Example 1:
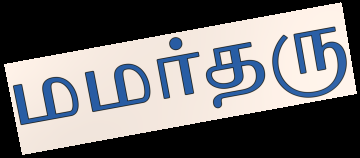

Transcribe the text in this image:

மமர்தரு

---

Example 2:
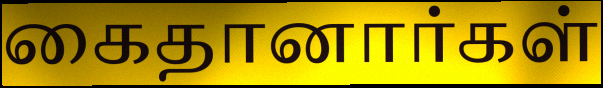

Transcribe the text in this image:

கைதானார்கள்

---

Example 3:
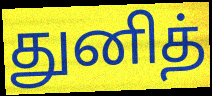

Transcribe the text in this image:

துனித்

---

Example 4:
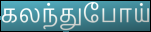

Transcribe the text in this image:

கலந்துபோய்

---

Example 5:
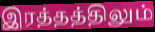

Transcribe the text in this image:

இரத்தத்திலும்